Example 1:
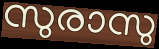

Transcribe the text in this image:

സുരാസു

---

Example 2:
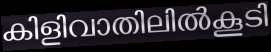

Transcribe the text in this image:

കിളിവാതിലിൽകൂടി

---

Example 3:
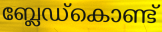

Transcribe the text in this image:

ബ്ലേഡ്കൊണ്ട്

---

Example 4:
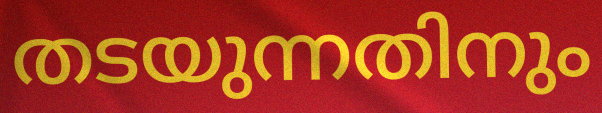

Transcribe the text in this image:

തടയുന്നതിനും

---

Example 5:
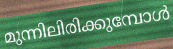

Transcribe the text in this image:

മുന്നിലിരിക്കുമ്പോൾ